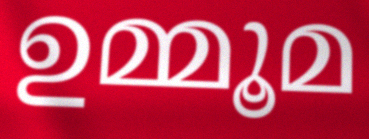
ഉമ്മൂമ